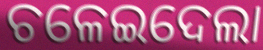
ଚଳେଇଦେଲା